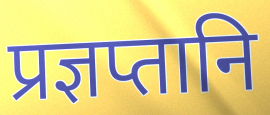
प्रज्ञप्तानि